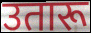
उतारू